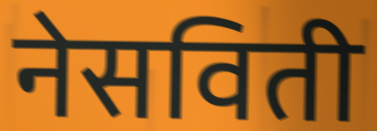
नेसविती